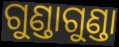
ଗୁଣ୍ଡାଗୁଣ୍ଡା